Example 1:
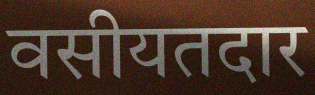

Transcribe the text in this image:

वसीयतदार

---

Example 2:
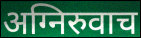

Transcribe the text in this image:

अग्निरुवाच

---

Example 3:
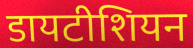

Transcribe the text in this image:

डायटीशियन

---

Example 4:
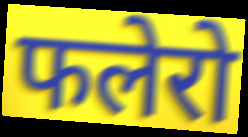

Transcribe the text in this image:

फलेरो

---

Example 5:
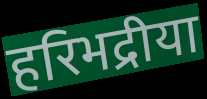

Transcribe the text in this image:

हरिभद्रीया